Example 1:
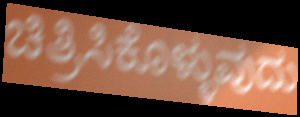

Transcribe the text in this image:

ಚಿತ್ರಿಸಿಕೊಳ್ಳುವುದು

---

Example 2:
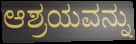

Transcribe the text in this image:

ಆಶ್ರಯವನ್ನು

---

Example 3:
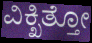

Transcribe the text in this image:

ವಿಕ್ಖಿತ್ತೋ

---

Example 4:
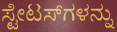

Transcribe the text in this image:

ಸ್ಟೇಟಸ್‌ಗಳನ್ನು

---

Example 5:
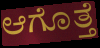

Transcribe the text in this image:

ಆಗೊತ್ತೆ